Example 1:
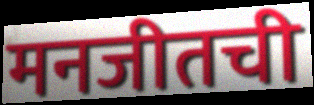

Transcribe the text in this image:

मनजीतची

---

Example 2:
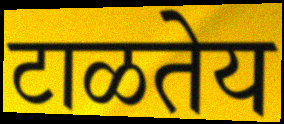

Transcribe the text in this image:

टाळतेय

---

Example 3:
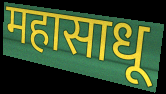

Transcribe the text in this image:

महासाधू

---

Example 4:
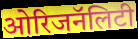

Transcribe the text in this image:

ओरिजनॅलिटी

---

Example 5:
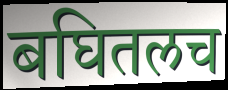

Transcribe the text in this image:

बघितलच